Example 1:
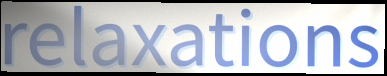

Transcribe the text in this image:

relaxations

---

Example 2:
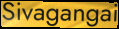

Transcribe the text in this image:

Sivagangai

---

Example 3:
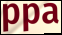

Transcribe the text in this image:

ppa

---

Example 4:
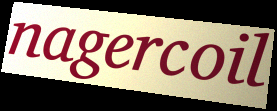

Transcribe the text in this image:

nagercoil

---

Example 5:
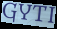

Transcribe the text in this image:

GYTI